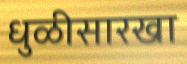
धुळीसारखा